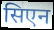
सिएन